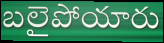
బలైపోయారు